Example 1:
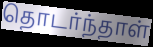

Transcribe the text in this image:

தொடர்ந்தாள்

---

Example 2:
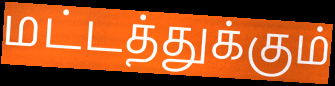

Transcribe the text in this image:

மட்டத்துக்கும்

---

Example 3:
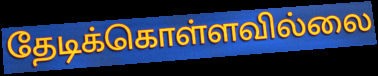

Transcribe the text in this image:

தேடிக்கொள்ளவில்லை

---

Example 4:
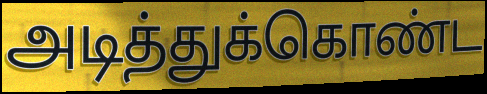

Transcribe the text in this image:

அடித்துக்கொண்ட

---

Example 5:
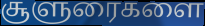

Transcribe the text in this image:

சூளுரைகளை